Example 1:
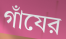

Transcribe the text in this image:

গাঁযের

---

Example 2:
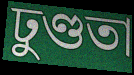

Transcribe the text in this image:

ঢুণ্ডতা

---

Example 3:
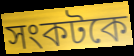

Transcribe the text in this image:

সংকটকে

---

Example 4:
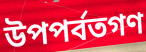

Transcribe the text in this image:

উপপর্বতগণ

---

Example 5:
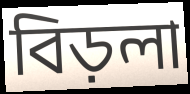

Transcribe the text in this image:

বিড়লা